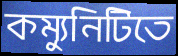
কম্যুনিটিতে